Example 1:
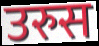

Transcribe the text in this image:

उरुस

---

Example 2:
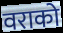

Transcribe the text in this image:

वराको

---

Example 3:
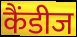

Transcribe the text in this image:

कैंडीज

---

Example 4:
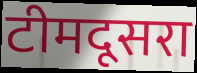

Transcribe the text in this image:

टीमदूसरा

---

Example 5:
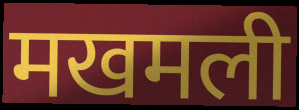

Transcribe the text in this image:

मखमली